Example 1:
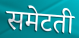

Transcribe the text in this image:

समेटती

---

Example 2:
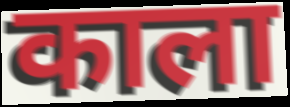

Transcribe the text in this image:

काला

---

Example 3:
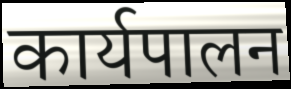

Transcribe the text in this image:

कार्यपालन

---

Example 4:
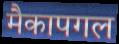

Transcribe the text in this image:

मैकापगल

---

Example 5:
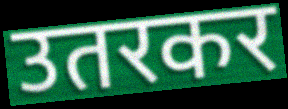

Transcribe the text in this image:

उतरकर